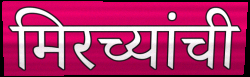
मिरच्यांची